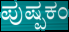
ಪುಷ್ಪಕಂ